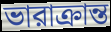
ভারাক্রান্ত